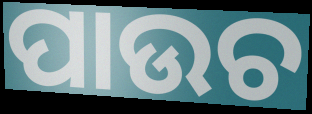
ପାଉଚ